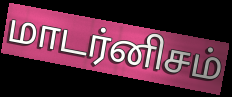
மாடர்னிசம்